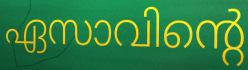
ഏസാവിന്റെ